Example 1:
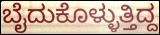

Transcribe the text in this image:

ಬೈದುಕೊಳ್ಳುತ್ತಿದ್ದ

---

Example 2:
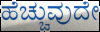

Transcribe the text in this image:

ಹೆಚ್ಚುವುದೇ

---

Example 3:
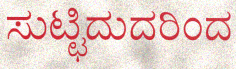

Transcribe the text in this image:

ಸುಟ್ಟಿದುದರಿಂದ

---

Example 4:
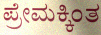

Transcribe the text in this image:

ಪ್ರೇಮಕ್ಕಿಂತ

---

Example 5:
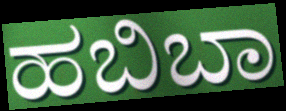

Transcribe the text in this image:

ಹಬಿಬಾ